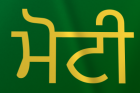
ਮੋਟੀ